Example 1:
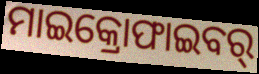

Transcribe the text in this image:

ମାଇକ୍ରୋଫାଇବର୍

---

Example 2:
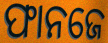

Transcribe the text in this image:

ଫାନଜେ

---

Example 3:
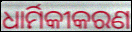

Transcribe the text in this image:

ଧାର୍ମିକୀକରଣ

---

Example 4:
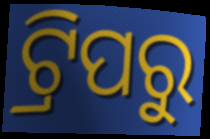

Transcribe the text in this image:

ଟ୍ରିପରୁ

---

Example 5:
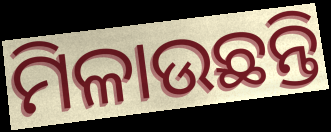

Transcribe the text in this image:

ମିଳାଉଛନ୍ତି